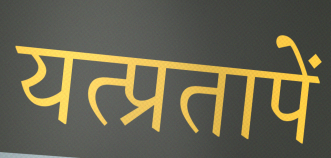
यत्प्रतापें